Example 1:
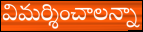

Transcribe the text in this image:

విమర్శించాలన్నా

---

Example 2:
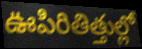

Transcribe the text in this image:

ఊపిరితిత్తుల్లో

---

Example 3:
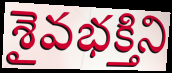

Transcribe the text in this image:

శైవభక్తిని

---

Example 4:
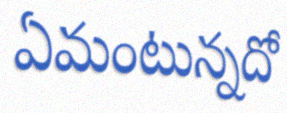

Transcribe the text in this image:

ఏమంటున్నదో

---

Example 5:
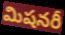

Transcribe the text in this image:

మిషనరీ